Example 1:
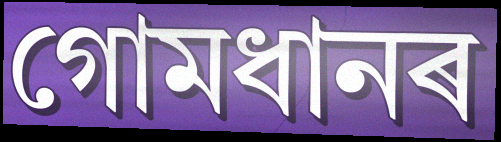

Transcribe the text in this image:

গোমধানৰ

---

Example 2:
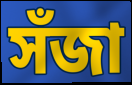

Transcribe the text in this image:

সঁজা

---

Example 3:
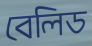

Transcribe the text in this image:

বেলিড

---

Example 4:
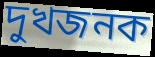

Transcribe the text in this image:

দুখজনক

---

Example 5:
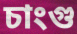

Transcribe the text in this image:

চাংগু